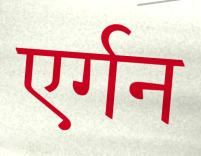
एर्गन